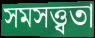
সমসত্ত্বতা